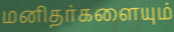
மனிதர்களையும்